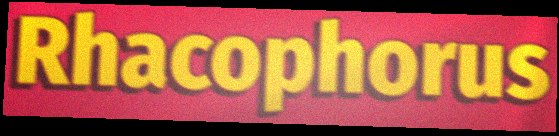
Rhacophorus